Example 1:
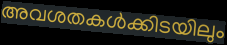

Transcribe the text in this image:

അവശതകൾക്കിടയിലും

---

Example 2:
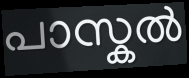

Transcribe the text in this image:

പാസ്കൽ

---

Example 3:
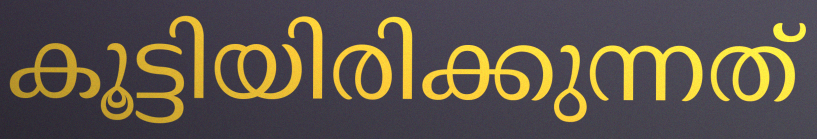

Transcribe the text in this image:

കൂട്ടിയിരിക്കുന്നത്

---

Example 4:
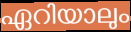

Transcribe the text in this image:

ഏറിയാലും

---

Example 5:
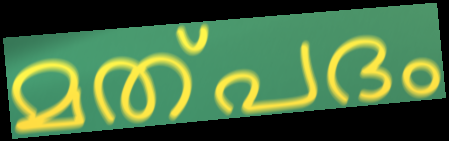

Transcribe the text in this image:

മത്പദം